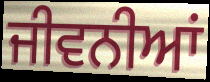
ਜੀਵਨੀਆਂ